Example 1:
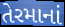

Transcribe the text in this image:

તેરમાનાં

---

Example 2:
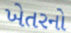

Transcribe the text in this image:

ખેતરનો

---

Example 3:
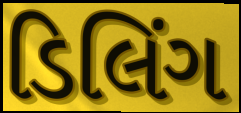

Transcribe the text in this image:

ડિલિંગ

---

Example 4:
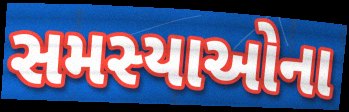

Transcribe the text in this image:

સમસ્યાઓના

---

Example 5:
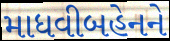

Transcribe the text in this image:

માધવીબહેનને